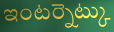
ఇంటర్నెట్కు